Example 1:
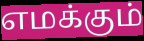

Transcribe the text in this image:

எமக்கும்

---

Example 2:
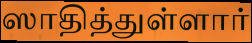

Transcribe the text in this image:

ஸாதித்துள்ளார்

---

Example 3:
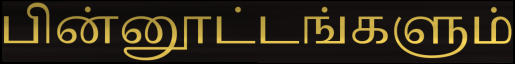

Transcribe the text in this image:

பின்னூட்டங்களும்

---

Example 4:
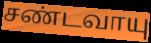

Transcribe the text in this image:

சண்டவாயு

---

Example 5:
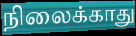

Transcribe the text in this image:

நிலைக்காது